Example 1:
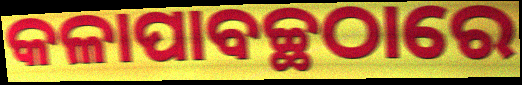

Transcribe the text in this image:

କଳାପାବଚ୍ଛଠାରେ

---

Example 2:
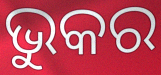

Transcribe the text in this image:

ଭୁକର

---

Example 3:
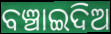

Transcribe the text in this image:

ବଞ୍ଚାଇଦିଅ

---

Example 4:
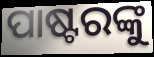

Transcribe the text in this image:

ପାଷ୍ଟରଙ୍କୁ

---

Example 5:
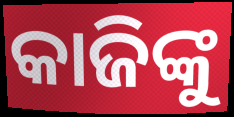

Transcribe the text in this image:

କାଜିଙ୍କୁ